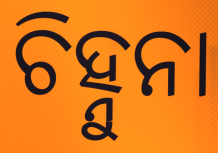
ଚିହ୍ନୁନା